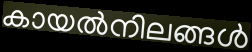
കായൽനിലങ്ങൾ